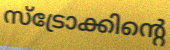
സ്ട്രോക്കിന്റെ